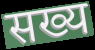
सख्य